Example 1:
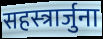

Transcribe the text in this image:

सहस्त्रार्जुना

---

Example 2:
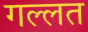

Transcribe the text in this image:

गल्लत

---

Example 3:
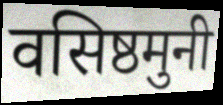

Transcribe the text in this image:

वसिष्ठमुनी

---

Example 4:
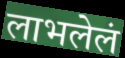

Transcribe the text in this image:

लाभलेलं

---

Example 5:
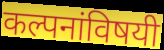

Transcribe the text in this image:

कल्पनांविषयी